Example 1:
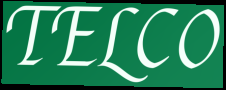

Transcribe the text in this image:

TELCO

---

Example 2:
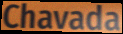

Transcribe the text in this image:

Chavada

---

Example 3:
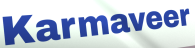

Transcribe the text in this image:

Karmaveer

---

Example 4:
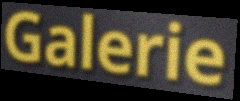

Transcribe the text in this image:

Galerie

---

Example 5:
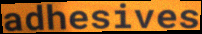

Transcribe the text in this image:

adhesives